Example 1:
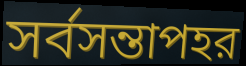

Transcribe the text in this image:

সর্বসন্তাপহর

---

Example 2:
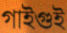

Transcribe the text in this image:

গাইগুই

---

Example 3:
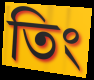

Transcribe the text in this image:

তিং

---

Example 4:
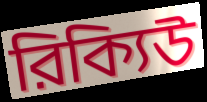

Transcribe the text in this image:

রিক্যিউ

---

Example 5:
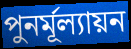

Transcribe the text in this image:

পুনর্মূল্যায়ন